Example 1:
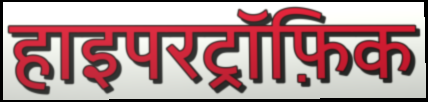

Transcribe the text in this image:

हाइपरट्रॉफ़िक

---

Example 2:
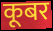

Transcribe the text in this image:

कूबर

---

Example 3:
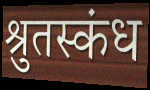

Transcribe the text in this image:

श्रुतस्कंध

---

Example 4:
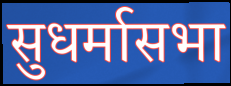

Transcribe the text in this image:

सुधर्मासभा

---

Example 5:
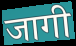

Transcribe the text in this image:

जागी